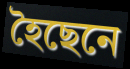
হৈছেনে